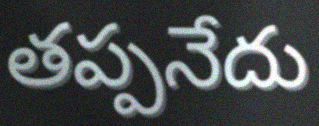
తప్పనేదు